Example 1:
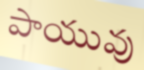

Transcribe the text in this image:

పాయువు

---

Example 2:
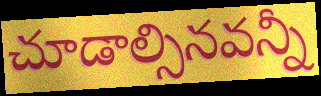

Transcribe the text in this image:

చూడాల్సినవన్నీ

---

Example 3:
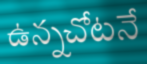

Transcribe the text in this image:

ఉన్నచోటనే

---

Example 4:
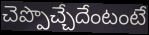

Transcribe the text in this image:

చెప్పొచ్చేదేంటంటే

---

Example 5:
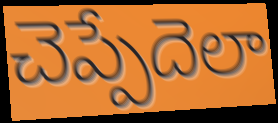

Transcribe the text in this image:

చెప్పేదెలా